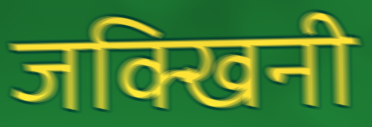
जक्खिनी